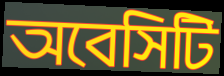
অবেসিটি